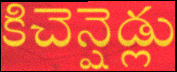
కిచెన్షెడ్లు